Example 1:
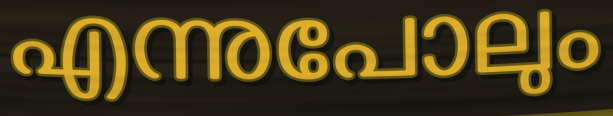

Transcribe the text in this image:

എന്നുപോലും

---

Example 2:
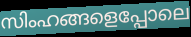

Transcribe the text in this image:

സിംഹങ്ങളെപ്പോലെ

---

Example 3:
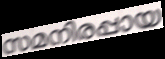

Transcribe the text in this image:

സമനിരപ്പായ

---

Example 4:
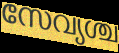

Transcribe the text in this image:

സേവ്യശ്ച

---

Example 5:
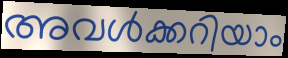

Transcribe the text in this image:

അവൾക്കറിയാം